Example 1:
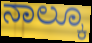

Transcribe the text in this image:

ನಾಲ್ಕೂ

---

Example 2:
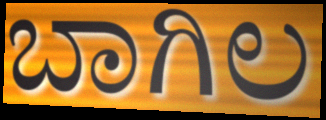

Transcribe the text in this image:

ಬಾಗಿಲ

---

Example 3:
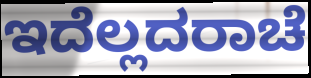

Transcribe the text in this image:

ಇದೆಲ್ಲದರಾಚೆ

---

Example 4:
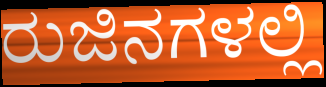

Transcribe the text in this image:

ರುಜಿನಗಳಲ್ಲಿ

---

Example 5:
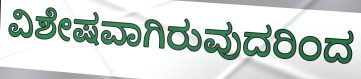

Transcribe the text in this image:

ವಿಶೇಷವಾಗಿರುವುದರಿಂದ